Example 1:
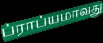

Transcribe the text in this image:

ப்ராப்யமாவது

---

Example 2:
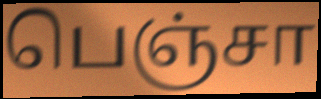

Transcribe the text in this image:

பெஞ்சா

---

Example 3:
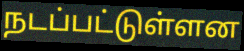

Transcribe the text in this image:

நடப்பட்டுள்ளன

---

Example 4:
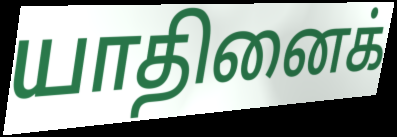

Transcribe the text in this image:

யாதினைக்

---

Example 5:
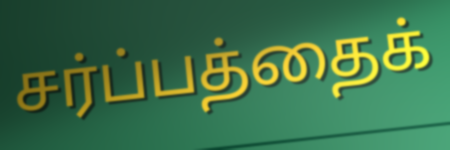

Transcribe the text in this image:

சர்ப்பத்தைக்